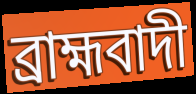
ব্ৰাহ্মবাদী